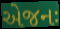
એજનઃ